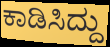
ಕಾಡಿಸಿದ್ದು